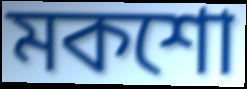
মকশো